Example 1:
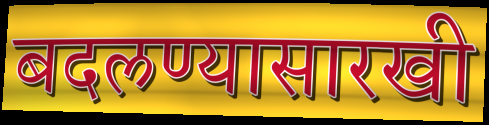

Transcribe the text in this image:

बदलण्यासारखी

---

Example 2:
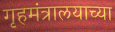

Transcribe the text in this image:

गृहमंत्रालयाच्या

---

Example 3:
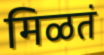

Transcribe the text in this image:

मिळतं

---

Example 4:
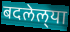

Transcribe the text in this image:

बदलेल्या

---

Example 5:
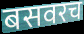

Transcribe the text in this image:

बसवरच